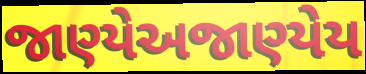
જાણ્યેઅજાણ્યેય